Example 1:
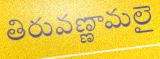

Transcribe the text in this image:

తిరువణ్ణామలై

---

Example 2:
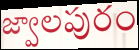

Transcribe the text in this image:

జ్వాలపురం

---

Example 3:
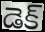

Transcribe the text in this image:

డెక్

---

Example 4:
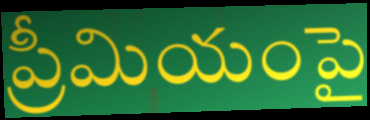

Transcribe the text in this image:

ప్రీమియంపై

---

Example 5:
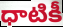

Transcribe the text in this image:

ధాటికీ